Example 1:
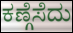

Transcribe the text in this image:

ಕಣ್ಗೆಸೆದು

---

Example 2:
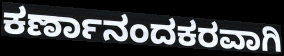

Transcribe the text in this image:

ಕರ್ಣಾನಂದಕರವಾಗಿ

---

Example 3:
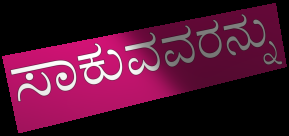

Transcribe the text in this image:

ಸಾಕುವವರನ್ನು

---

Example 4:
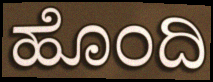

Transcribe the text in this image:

ಹೊಂದಿ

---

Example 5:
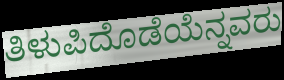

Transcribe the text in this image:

ತಿಳುಪಿದೊಡೆಯೆನ್ನವರು